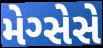
મેગ્સેસે